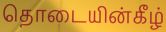
தொடையின்கீழ்